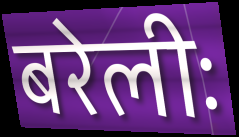
बरेलीः